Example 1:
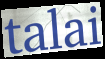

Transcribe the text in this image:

talai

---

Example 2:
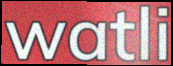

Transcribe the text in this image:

watli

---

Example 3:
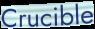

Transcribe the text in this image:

Crucible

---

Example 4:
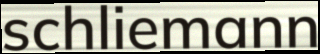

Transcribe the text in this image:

schliemann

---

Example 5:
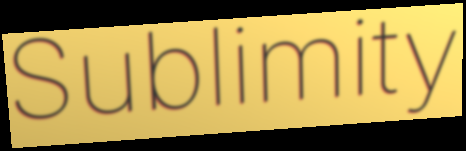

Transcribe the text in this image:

Sublimity